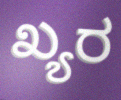
ಖ್ಯರ